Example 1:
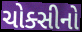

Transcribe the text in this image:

ચોક્સીનો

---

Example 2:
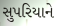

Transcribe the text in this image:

સુપરિયાને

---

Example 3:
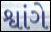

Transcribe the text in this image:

શ્વાંગે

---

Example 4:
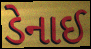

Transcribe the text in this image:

ડેનાઈ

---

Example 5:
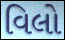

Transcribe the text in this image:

વિલો